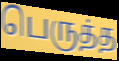
பெருத்த